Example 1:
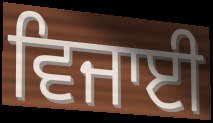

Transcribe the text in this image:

ਵਿਜਾਈ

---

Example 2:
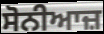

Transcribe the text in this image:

ਸੋਨੀਆਜ਼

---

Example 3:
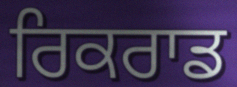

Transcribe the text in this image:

ਰਿਕਰਾਡ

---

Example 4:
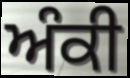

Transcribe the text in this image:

ਅੰਕੀ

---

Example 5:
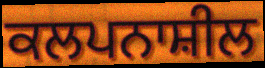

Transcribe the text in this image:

ਕਲਪਨਾਸ਼ੀਲ